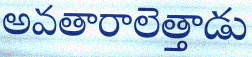
అవతారాలెత్తాడు